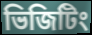
ভিজিটিং